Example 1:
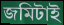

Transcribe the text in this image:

জমিটাই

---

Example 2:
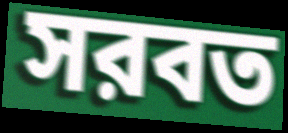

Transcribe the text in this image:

সরবত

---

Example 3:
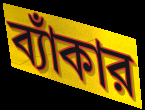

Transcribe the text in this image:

ব্যাঁকার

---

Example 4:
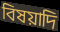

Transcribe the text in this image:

বিষয়াদি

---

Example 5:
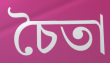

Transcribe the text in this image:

চৈতা